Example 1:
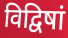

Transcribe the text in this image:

विद्विषां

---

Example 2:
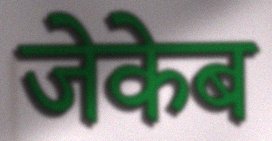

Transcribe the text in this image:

जेकेब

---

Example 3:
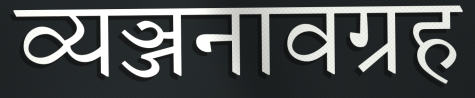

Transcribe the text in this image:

व्यञ्जनावग्रह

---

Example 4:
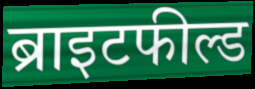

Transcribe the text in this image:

ब्राइटफील्ड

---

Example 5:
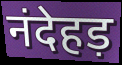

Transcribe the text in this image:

नंदेहड़